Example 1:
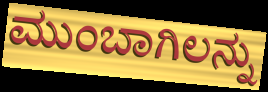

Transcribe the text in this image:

ಮುಂಬಾಗಿಲನ್ನು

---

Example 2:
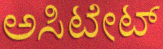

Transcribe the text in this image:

ಅಸಿಟೇಟ್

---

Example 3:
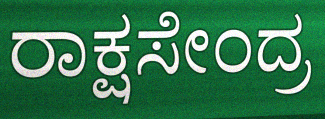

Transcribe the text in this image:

ರಾಕ್ಷಸೇಂದ್ರ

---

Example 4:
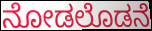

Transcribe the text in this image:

ನೋಡಲೊಡನೆ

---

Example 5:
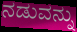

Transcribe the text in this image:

ನಡುವನ್ನು